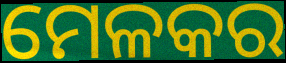
ମେଳକର